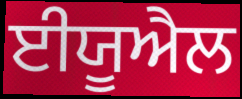
ਈਯੂਐਲ